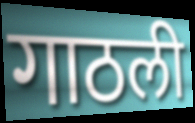
गाठली